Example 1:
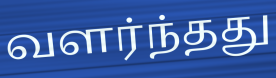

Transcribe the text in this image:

வளர்ந்தது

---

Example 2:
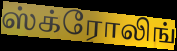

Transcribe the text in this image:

ஸ்க்ரோலிங்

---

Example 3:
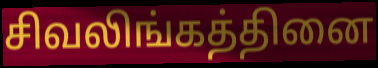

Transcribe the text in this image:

சிவலிங்கத்தினை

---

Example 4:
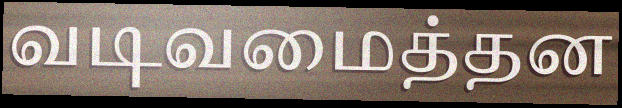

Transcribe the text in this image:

வடிவமைத்தன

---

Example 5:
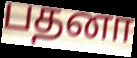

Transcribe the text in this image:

பதனா